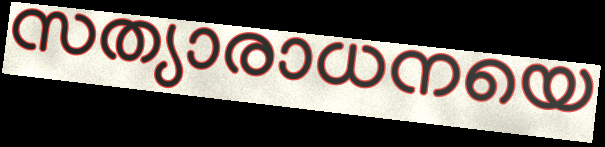
സത്യാരാധനയെ